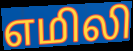
எமிலி